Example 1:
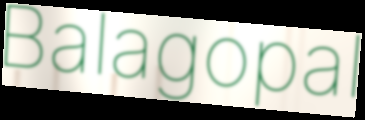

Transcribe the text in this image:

Balagopal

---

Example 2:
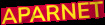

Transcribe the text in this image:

APARNET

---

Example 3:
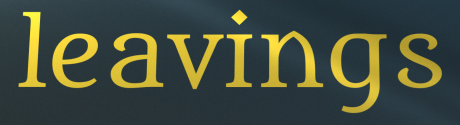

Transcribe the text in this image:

leavings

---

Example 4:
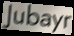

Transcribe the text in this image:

Jubayr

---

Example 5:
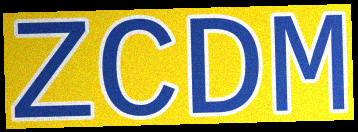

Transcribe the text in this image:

ZCDM